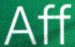
Aff